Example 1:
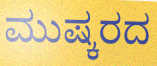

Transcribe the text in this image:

ಮುಷ್ಕರದ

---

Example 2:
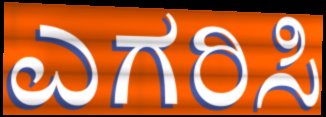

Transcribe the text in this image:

ಎಗರಿಸಿ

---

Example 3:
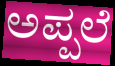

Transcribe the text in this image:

ಅಪ್ಪಲೆ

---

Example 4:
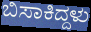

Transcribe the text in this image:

ಬಿಸಾಕಿದ್ದಳು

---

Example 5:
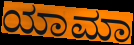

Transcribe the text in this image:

ಯಾಮಾ